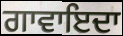
ਗਾਵਾਇਦਾ